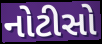
નોટીસો